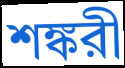
শঙ্করী